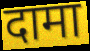
दामा